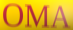
OMA